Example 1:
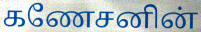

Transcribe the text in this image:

கணேசனின்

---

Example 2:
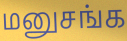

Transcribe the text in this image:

மனுசங்க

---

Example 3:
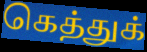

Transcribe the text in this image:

கெத்துக்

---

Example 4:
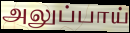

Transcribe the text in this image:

அலுப்பாய்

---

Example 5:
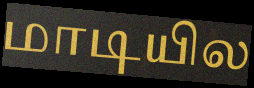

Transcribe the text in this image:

மாடியில